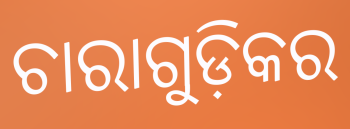
ଚାରାଗୁଡ଼ିକର